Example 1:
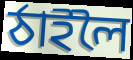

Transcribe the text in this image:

ঠাইলৈ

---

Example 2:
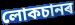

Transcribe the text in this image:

লোকচানৰ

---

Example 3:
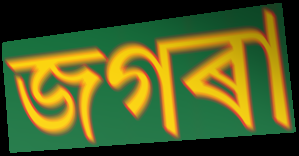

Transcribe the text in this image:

জগৰা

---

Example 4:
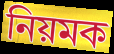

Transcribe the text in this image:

নিয়মক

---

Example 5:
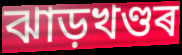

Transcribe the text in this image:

ঝাড়খণ্ডৰ